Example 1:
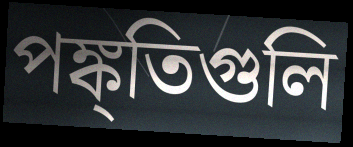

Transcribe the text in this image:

পঙ্ক্তিগুলি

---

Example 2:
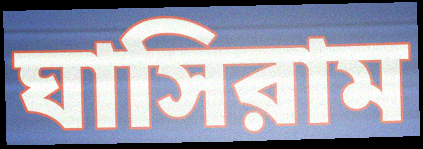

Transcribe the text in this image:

ঘাসিরাম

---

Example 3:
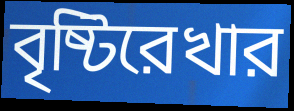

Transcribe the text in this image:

বৃষ্টিরেখার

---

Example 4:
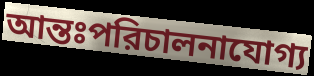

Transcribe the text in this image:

আন্তঃপরিচালনাযোগ্য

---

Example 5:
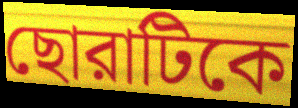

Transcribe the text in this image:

ছোরাটিকে